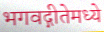
भगवद्गीतेमध्ये